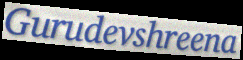
Gurudevshreena